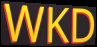
WKD